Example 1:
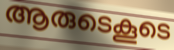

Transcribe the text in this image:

ആരുടെകൂടെ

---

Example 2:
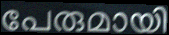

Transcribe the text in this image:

പേരുമായി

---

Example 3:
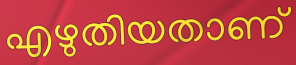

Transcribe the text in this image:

എഴുതിയതാണ്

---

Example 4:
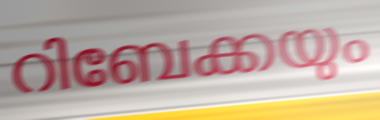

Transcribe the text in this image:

റിബേക്കയും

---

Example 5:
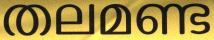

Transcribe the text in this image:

തലമണ്ട